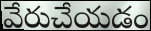
వేరుచేయడం